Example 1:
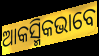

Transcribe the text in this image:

ଆକସ୍ମିକଭାବେ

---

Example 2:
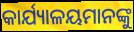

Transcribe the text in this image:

କାର୍ଯ୍ୟାଳୟମାନଙ୍କୁ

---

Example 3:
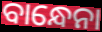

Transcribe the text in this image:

ବାନ୍ଧେନା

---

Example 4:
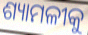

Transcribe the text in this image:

ଶ୍ୟାମଳୀକୁ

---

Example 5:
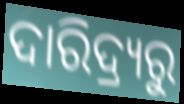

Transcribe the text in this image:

ଦାରିଦ୍ର୍ୟରୁ